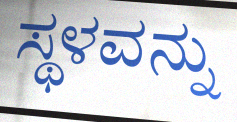
ಸ್ಥಳವನ್ನು